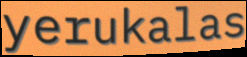
yerukalas